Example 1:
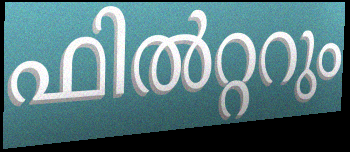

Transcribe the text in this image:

ഫിൽറ്ററും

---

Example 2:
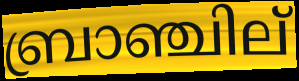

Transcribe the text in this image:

ബ്രാഞ്ചില്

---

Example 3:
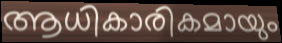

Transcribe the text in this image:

ആധികാരികമായും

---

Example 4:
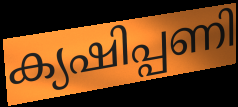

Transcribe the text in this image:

ക്യഷിപ്പണി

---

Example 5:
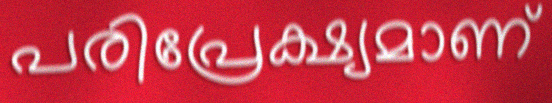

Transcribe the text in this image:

പരിപ്രേക്ഷ്യമാണ്